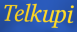
Telkupi